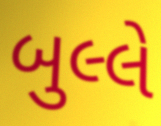
બુલ્લે